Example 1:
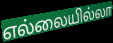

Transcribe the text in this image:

எல்லையில்லா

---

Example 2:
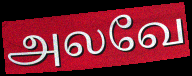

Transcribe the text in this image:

அலவே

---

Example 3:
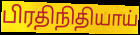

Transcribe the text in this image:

பிரதிநிதியாய்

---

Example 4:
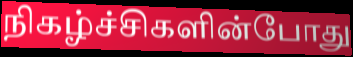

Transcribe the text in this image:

நிகழ்ச்சிகளின்போது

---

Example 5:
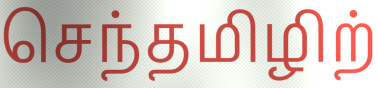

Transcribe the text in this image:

செந்தமிழிற்